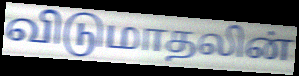
விடுமாதலின்